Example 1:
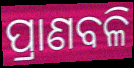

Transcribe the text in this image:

ପ୍ରାଣବଳି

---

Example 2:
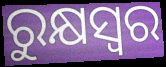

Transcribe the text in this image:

ରୁକ୍ଷସ୍ୱର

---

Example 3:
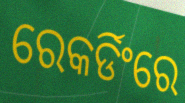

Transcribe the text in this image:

ରେକର୍ଡିଂରେ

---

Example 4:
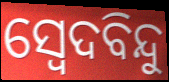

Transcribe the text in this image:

ସ୍ଵେଦବିନ୍ଦୁ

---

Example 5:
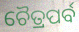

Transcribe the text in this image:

ଚୈତ୍ରପର୍ବ